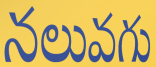
నలువగు